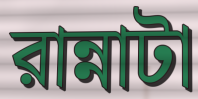
রান্নাটা